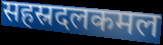
सहस्रदलकमल